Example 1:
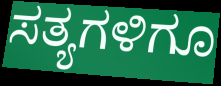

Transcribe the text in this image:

ಸತ್ಯಗಳಿಗೂ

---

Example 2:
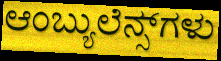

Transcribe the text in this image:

ಆಂಬ್ಯುಲೆನ್ಸ್‌ಗಳು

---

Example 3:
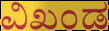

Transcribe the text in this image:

ವಿಖಂಡ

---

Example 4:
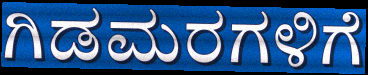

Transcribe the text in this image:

ಗಿಡಮರಗಳಿಗೆ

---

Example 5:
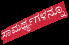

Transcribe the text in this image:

ಸಾಮರ್ಥ್ಯಗಳನ್ನೂ